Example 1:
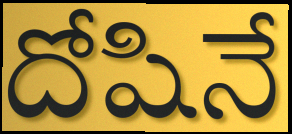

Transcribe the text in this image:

దోషినే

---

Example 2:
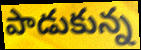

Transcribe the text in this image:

పాడుకున్న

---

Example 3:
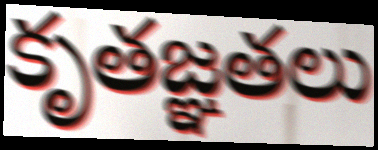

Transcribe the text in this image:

కృతజ్ఞతలు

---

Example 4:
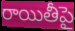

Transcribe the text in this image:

రాయితీపై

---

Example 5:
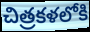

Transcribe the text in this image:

చిత్రకళలోకి